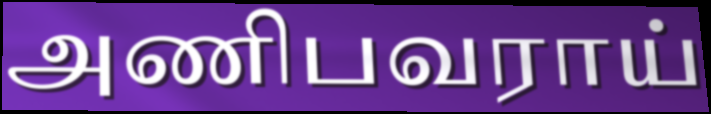
அணிபவராய்